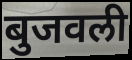
बुजवली